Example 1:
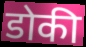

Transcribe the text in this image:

डोकी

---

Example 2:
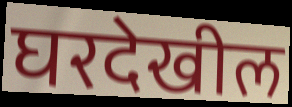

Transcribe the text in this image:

घरदेखील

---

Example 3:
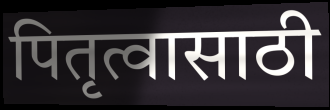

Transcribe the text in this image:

पितृत्वासाठी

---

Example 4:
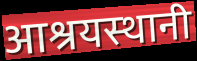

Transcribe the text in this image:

आश्रयस्थानी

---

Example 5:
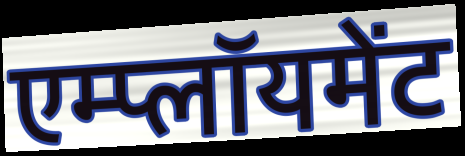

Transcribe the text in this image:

एम्प्लॉयमेंट